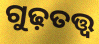
ଗୁଢ଼ତତ୍ତ୍ୱ